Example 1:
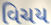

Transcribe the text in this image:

વિચય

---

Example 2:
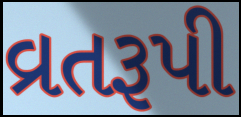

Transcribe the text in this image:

વ્રતરૂપી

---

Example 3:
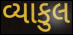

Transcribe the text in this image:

વ્યાકુલ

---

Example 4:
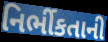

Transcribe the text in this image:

નિર્ભીકતાની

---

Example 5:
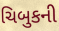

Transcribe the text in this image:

ચિબુકની